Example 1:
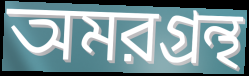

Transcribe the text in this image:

অমরগ্রন্থ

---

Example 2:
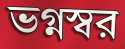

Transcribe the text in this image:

ভগ্নস্বর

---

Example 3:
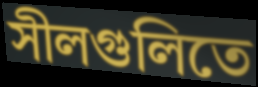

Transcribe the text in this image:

সীলগুলিতে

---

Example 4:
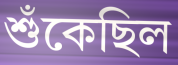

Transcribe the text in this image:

শুঁকেছিল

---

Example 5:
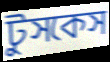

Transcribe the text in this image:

টুসকেস